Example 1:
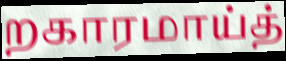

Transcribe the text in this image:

றகாரமாய்த்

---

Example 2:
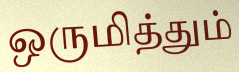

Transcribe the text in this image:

ஒருமித்தும்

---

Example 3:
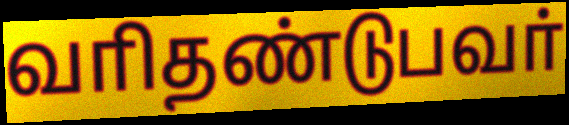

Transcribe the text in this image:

வரிதண்டுபவர்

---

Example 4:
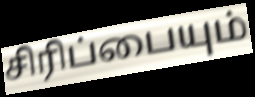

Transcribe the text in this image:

சிரிப்பையும்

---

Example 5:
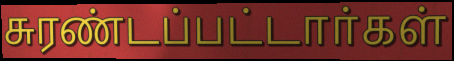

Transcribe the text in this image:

சுரண்டப்பட்டார்கள்